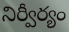
నిర్వీర్యం